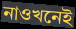
নাওখনেই